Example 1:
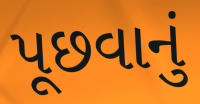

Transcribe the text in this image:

પૂછવાનું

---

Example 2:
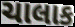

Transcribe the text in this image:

ચાલાક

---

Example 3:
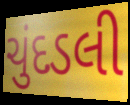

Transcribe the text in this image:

ચુંદડલી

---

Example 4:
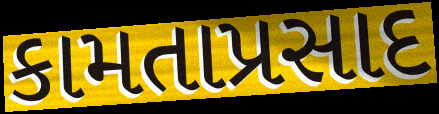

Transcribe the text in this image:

કામતાપ્રસાદ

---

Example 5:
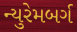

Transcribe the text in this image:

ન્યુરેમબર્ગ